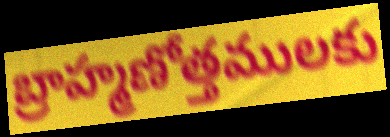
బ్రాహ్మణోత్తములకు